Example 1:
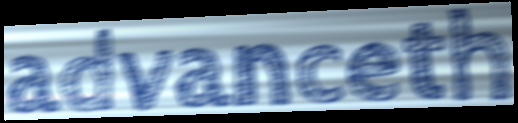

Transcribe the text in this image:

advanceth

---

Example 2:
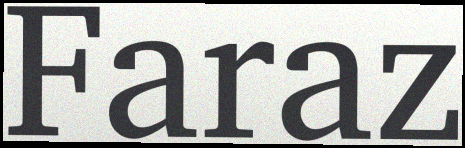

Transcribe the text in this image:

Faraz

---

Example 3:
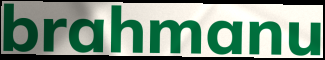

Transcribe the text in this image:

brahmanu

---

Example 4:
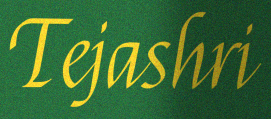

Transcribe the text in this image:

Tejashri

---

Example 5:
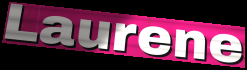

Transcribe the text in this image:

Laurene